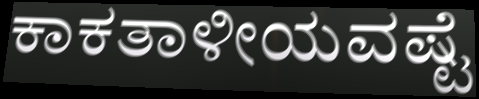
ಕಾಕತಾಳೀಯವಷ್ಟೆ